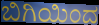
ಬಿಗಿಯಿಂದ